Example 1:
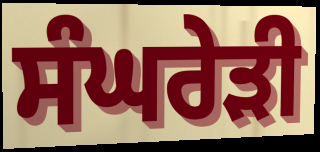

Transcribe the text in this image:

ਸੰਘਰੇੜੀ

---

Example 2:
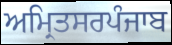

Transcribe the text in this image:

ਅਮ੍ਰਿਤਸਰਪੰਜਾਬ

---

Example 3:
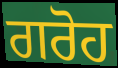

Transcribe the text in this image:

ਗਰੋਹ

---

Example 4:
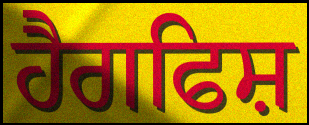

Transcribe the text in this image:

ਹੈਗਫਿਸ਼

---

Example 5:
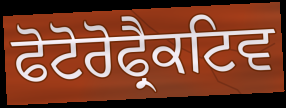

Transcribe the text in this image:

ਫੋਟੋਰੋਫ੍ਰੈਕਟਿਵ